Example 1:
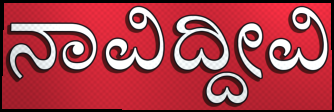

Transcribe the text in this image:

ನಾವಿದ್ದೀವಿ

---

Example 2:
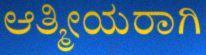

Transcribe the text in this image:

ಆತ್ಮೀಯರಾಗಿ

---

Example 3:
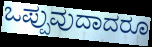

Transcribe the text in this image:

ಒಪ್ಪುವುದಾದರೂ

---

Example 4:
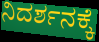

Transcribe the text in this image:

ನಿದರ್ಶನಕ್ಕೆ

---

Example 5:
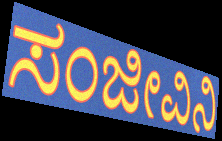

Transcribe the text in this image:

ಸಂಜೀವಿನಿ